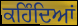
ਕਹਿੰਦਿਆਂ